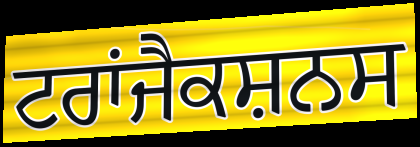
ਟਰਾਂਜੈਕਸ਼ਨਸ